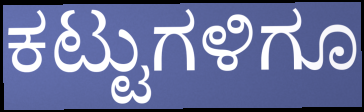
ಕಟ್ಟುಗಳಿಗೂ